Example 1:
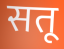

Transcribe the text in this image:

सतू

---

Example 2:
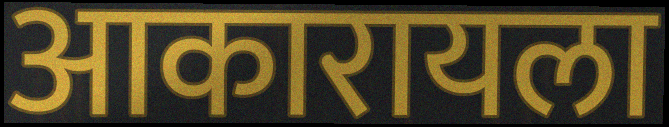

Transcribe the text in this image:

आकारायला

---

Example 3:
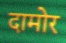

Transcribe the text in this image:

दामोर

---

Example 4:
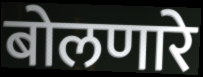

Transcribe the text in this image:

बोलणारे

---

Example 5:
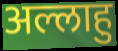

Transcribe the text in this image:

अल्लाहु